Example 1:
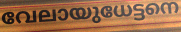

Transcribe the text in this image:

വേലായുധേട്ടനെ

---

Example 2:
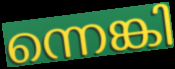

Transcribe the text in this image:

ന്നെങ്കി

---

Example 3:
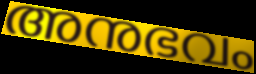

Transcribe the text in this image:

അനുഭവം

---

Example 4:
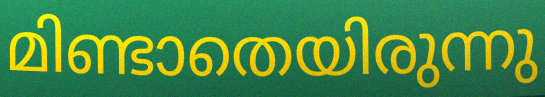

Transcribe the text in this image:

മിണ്ടാതെയിരുന്നു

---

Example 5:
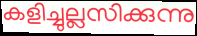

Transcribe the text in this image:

കളിച്ചുല്ലസിക്കുന്നു